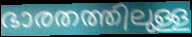
ഭാരതത്തിലുള്ള